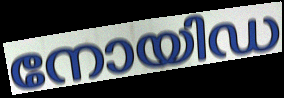
നോയിഡ